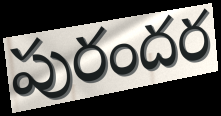
పురందర